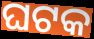
ଘଟକ